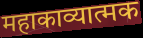
महाकाव्यात्मक